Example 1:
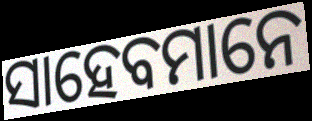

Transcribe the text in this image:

ସାହେବମାନେ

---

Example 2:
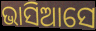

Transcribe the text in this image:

ଭାସିଆସେ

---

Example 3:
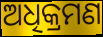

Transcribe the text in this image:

ଅଧିକ୍ରମଣ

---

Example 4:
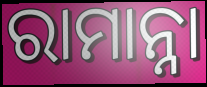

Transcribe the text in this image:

ରାମାନ୍ନା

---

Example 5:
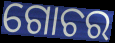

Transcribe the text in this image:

ଗୋଚର